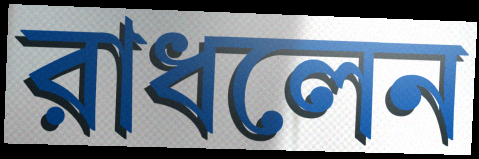
রাধলেন